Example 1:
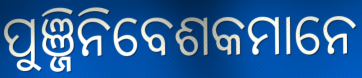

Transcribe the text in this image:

ପୁଞ୍ଜିନିବେଶକମାନେ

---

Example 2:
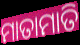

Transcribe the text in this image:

ମାତାମାତି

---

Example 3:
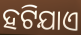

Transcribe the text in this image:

ହଟିଯାଏ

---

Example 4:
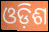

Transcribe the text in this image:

ଓଡ଼ିଶ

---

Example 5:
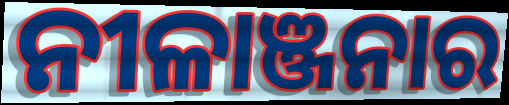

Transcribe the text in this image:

ନୀଳାଞ୍ଜନାର